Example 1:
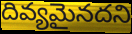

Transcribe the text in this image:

దివ్యమైనదని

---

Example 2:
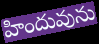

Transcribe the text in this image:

హిందువును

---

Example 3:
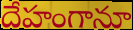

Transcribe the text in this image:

దేహంగానూ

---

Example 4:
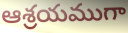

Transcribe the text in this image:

ఆశ్రయముగా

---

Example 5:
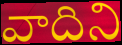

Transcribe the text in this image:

వాదిని